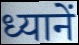
ध्यानें